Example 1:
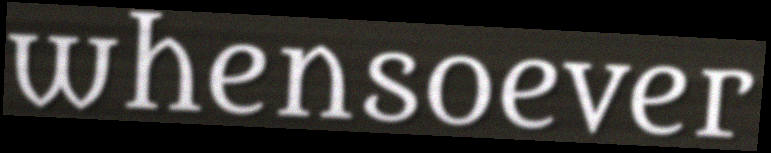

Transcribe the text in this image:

whensoever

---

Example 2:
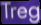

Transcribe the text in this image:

Treg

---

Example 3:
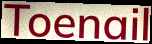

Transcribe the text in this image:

Toenail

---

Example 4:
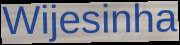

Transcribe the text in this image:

Wijesinha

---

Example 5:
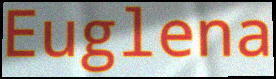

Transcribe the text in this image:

Euglena